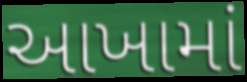
આખામાં